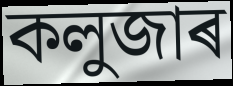
কলুজাৰ